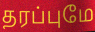
தரப்புமே